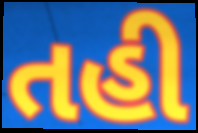
તહી